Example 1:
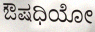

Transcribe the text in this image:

ಔಷಧಿಯೋ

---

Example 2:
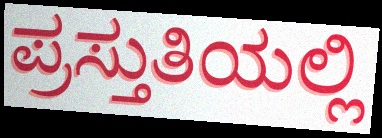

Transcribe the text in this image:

ಪ್ರಸ್ತುತಿಯಲ್ಲಿ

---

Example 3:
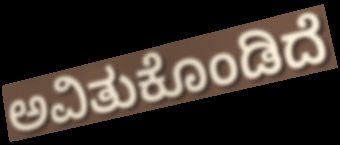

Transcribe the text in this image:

ಅವಿತುಕೊಂಡಿದೆ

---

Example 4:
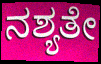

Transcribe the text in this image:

ನಶ್ಯತೇ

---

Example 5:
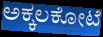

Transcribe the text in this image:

ಅಕ್ಕಲಕೋಟೆ